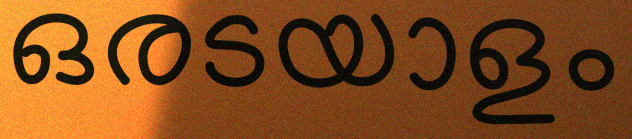
ഒരടയാളം